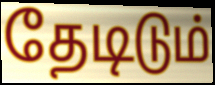
தேடிடும்